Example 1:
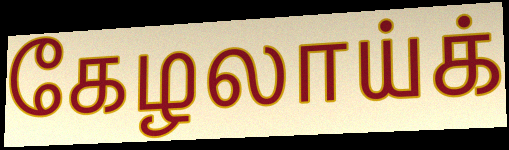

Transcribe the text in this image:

கேழலாய்க்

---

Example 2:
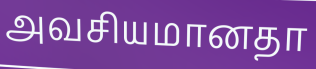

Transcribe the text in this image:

அவசியமானதா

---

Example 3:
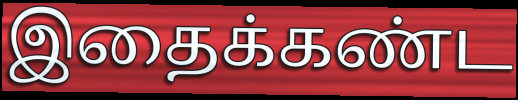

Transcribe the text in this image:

இதைக்கண்ட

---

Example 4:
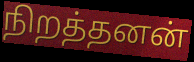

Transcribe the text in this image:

நிறத்தனன்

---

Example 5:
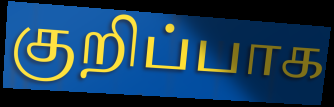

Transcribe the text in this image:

குறிப்பாக